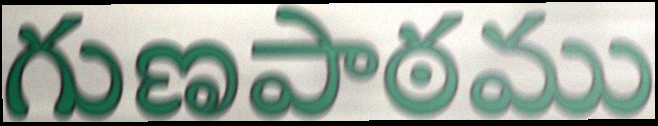
గుణపాఠము